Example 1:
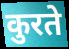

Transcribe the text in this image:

कुरते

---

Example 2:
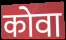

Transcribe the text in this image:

कोवा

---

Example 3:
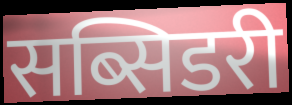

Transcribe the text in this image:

सब्सिडरी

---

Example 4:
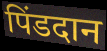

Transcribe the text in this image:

पिंडदान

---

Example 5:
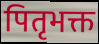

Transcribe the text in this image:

पितृभक्त